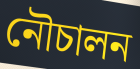
নৌচালন